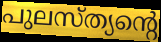
പുലസ്ത്യന്റെ